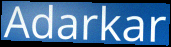
Adarkar